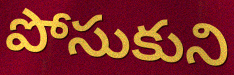
పోసుకుని